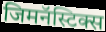
जिमनॅस्टिक्स